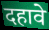
दहावे